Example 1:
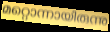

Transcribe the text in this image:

മറ്റൊന്നായിരുന്നു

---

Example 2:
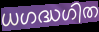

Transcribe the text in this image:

ധഗദ്ധഗിത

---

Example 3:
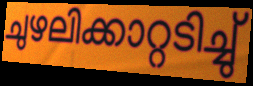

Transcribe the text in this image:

ചുഴലിക്കാറ്റടിച്ചു്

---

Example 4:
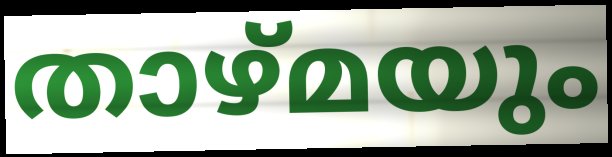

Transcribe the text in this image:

താഴ്മയും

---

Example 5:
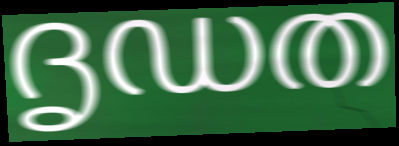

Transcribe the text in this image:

ദൃഡത